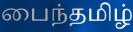
பைந்தமிழ்